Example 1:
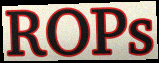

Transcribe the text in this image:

ROPs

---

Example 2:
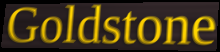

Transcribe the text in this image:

Goldstone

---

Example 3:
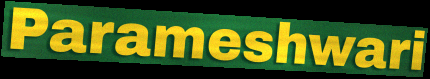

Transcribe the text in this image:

Parameshwari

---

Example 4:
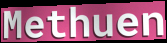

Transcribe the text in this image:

Methuen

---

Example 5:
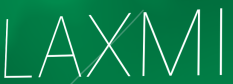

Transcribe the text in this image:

LAXMI